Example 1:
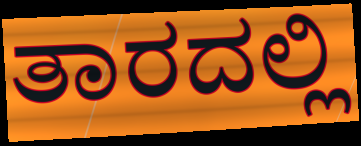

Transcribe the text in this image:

ತಾರದಲ್ಲಿ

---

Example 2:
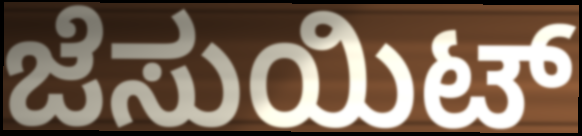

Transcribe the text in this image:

ಜೆಸುಯಿಟ್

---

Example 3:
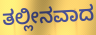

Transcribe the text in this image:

ತಲ್ಲೀನವಾದ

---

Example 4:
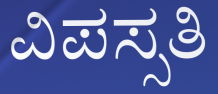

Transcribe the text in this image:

ವಿಪಸ್ಸತಿ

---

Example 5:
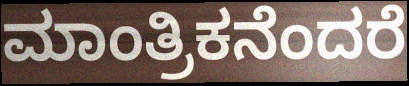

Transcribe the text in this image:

ಮಾಂತ್ರಿಕನೆಂದರೆ